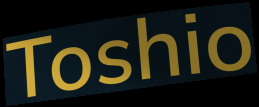
Toshio